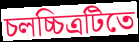
চলচ্চিত্রটিতে